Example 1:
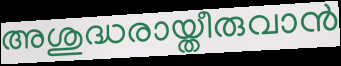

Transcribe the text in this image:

അശുദ്ധരായ്തീരുവാൻ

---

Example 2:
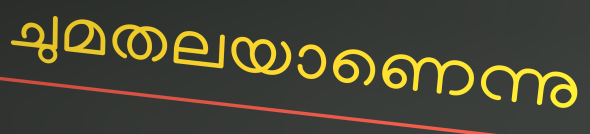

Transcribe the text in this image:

ചുമതലയാണെന്നു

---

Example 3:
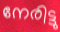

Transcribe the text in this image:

നേരിട്ടു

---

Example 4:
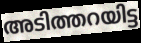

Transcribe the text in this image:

അടിത്തറയിട്ട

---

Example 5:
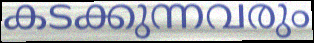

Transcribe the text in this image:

കടക്കുന്നവരും